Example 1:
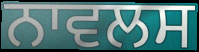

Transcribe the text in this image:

ਨਾਵਲਸ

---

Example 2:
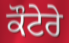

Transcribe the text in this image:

ਕੌਟੇਰੇ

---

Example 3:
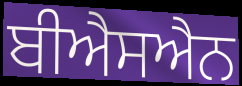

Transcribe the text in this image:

ਬੀਐਸਐਨ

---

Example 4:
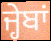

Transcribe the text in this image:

ਜ੍ਹੇਬਾਂ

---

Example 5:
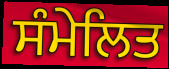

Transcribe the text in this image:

ਸੰਮੇਲਿਤ